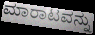
ಮಾರಾಟವನ್ನು